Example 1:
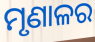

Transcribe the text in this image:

ମୃଣାଳର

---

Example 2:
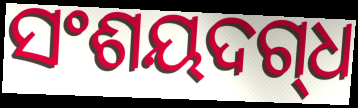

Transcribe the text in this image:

ସଂଶୟଦଗ୍‌ଧ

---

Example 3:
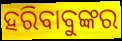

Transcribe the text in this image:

ହରିବାବୁଙ୍କର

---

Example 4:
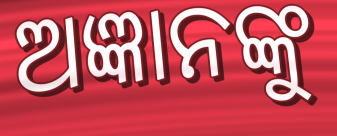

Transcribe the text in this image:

ଅଜ୍ଞାନଙ୍କୁ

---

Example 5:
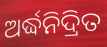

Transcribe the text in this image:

ଅର୍ଦ୍ଧନିଦ୍ରିତ